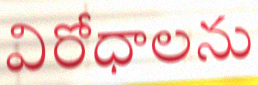
విరోధాలను